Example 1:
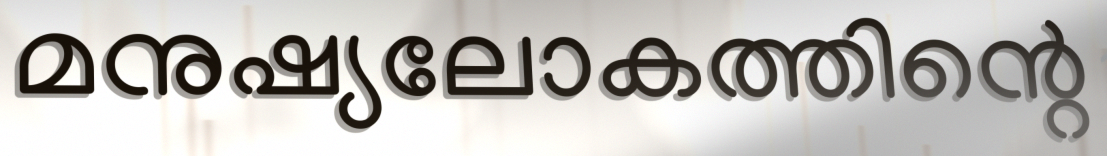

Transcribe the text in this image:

മനുഷ്യലോകത്തിന്റെ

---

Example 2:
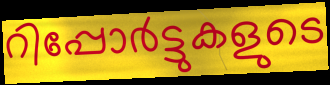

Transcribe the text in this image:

റിപ്പോർട്ടുകളുടെ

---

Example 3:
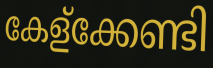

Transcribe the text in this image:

കേള്ക്കേണ്ടി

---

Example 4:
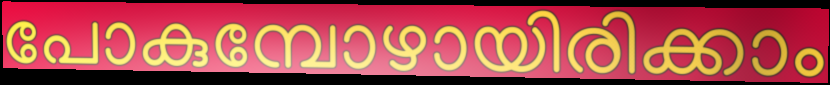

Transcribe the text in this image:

പോകുമ്പോഴായിരിക്കാം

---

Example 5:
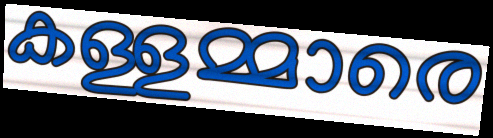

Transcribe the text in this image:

കള്ളമ്മാരെ